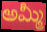
అమ్మీ